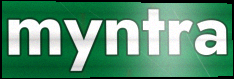
myntra